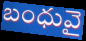
బంధువై